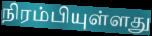
நிரம்பியுள்ளது